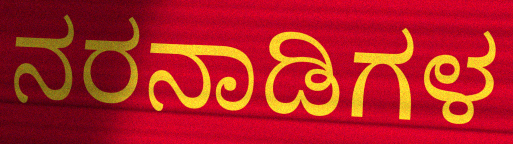
ನರನಾಡಿಗಳ